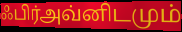
ஃபிர்அவ்னிடமும்